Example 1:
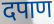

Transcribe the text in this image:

दपाण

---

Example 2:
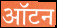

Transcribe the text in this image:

ऑटन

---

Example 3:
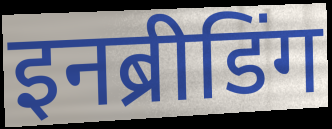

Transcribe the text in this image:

इनब्रीडिंग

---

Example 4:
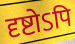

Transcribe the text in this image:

दृष्टोऽपि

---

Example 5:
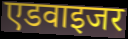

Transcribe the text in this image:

एडवाइजर